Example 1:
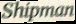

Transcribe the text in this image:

Shipman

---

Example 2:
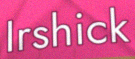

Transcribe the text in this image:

Irshick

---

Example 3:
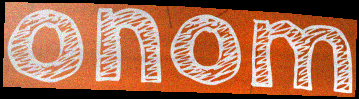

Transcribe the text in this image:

onom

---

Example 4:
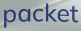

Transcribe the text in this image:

packet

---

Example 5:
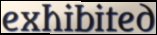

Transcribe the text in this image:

exhibited